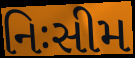
નિઃસીમ